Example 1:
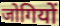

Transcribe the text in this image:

जोगियों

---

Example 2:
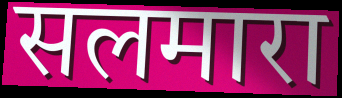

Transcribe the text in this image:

सलमारा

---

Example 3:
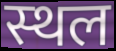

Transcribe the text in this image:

स्‍थल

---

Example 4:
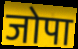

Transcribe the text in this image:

जोपा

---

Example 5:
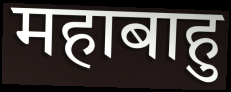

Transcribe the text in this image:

महाबाहु